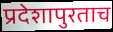
प्रदेशापुरताच